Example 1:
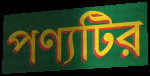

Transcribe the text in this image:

পণ্যটির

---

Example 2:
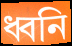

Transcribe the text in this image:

ধ্বনি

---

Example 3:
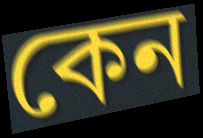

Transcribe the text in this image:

কেন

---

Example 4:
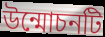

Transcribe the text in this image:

উন্মোচনটি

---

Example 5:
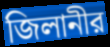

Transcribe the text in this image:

জিলানীর